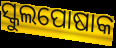
ସ୍କୁଲପୋଷାକ